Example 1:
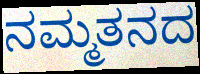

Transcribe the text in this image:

ನಮ್ಮತನದ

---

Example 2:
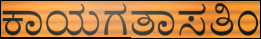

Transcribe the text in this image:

ಕಾಯಗತಾಸತಿಂ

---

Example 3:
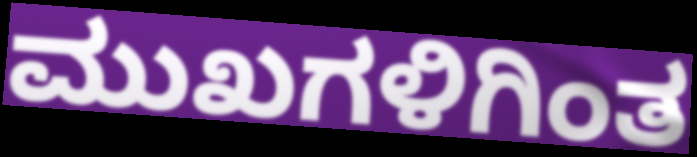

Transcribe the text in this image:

ಮುಖಗಳಿಗಿಂತ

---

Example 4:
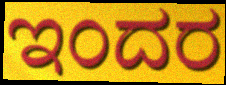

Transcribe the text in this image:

ಇಂದರ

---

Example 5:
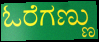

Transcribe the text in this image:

ಓರೆಗಣ್ಣು